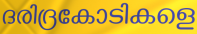
ദരിദ്രകോടികളെ